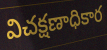
విచక్షణాధికార